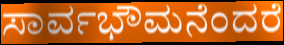
ಸಾರ್ವಭೌಮನೆಂದರೆ